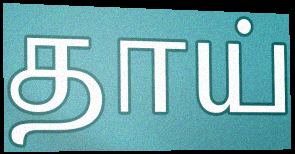
தாய்